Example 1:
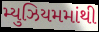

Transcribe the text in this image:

મ્યુઝિયમમાંથી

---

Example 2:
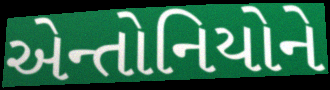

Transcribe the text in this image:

એન્તોનિયોને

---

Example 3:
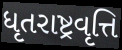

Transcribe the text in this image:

ધૃતરાષ્ટ્રવૃત્તિ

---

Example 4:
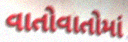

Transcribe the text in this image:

વાતોવાતોમાં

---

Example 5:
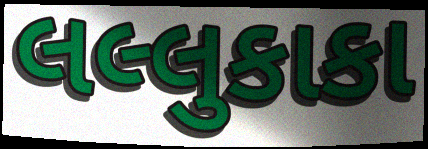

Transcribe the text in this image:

લલ્લુકાકા